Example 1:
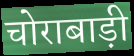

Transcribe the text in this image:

चोराबाड़ी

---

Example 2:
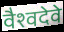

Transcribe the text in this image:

वैश्वदेवे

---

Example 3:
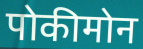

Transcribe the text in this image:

पोकीमोन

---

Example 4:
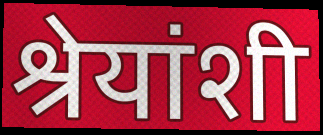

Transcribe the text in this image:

श्रेयांशी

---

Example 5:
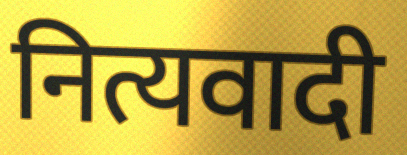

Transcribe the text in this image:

नित्यवादी